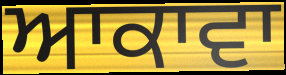
ਆਕਾਵਾ